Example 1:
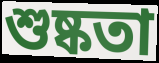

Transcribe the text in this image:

শুষ্কতা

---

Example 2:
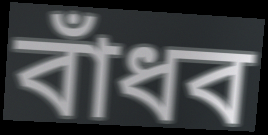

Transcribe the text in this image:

বাঁধব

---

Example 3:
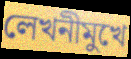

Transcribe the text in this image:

লেখনীমুখে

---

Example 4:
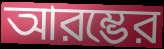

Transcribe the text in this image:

আরম্ভের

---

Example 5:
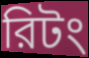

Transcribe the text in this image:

রিটং